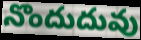
నొందుదువు